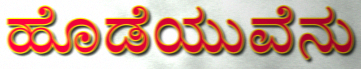
ಹೊಡೆಯುವೆನು